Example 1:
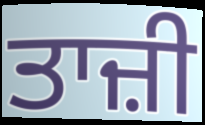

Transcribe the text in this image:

ਤਾਜ਼ੀ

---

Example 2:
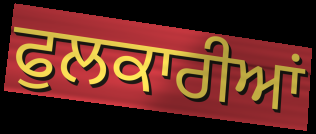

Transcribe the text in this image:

ਫੁਲਕਾਰੀਆਂ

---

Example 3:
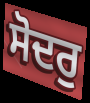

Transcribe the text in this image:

ਸੋਦਰੁ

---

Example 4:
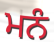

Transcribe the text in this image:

ਮਨੰ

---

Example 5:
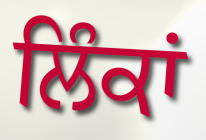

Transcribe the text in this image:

ਲਿੰਕਾਂ